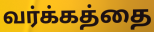
வர்க்கத்தை